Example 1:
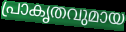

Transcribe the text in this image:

പ്രാകൃതവുമായ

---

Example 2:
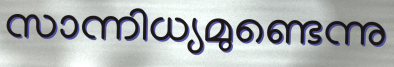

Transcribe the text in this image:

സാന്നിധ്യമുണ്ടെന്നു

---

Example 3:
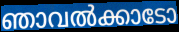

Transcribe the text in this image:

ഞാവൽക്കാടോ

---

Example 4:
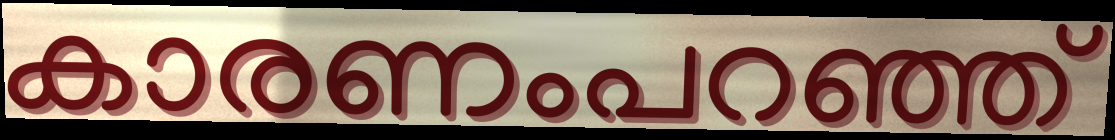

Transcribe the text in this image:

കാരണംപറഞ്ഞ്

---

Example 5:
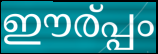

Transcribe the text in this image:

ഈര്പ്പം